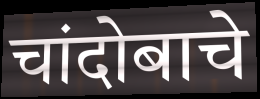
चांदोबाचे